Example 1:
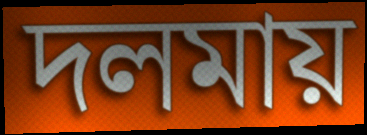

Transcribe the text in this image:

দলমায়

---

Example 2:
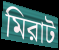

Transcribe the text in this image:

মিরাট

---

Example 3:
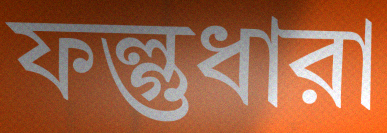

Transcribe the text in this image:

ফল্গুধারা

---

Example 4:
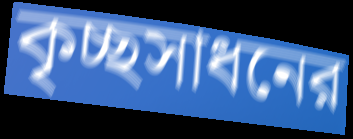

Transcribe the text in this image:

কৃচ্ছসাধনের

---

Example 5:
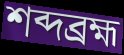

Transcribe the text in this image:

শব্দব্রহ্ম